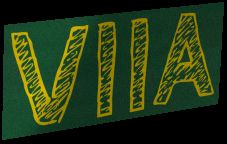
VIIA